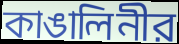
কাঙালিনীর